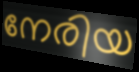
നേരിയ